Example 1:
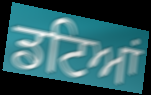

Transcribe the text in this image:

ਡਟਿਆਂ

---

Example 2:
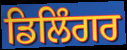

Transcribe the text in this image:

ਡਿਲਿੰਗਰ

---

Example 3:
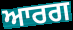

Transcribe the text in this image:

ਆਰਗ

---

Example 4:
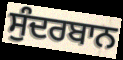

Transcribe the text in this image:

ਸੁੰਦਰਬਾਨ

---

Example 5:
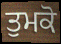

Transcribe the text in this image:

ਤੁਮਕੋ